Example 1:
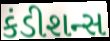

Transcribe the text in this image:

કંડીશન્સ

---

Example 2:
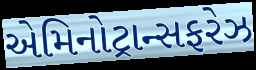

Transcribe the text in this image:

એમિનોટ્રાન્સફરેઝ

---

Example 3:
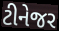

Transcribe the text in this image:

ટીનેજર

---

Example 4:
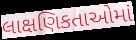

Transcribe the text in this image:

લાક્ષણિકતાઓમાં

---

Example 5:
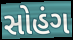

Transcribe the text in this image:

સોહંગ